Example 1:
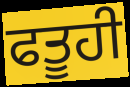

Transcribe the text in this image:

ਫਤੂਹੀ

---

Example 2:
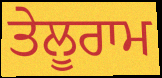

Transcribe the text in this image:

ਤੇਲੂਰਾਮ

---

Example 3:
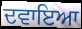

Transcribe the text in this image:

ਦਵਾਇਆ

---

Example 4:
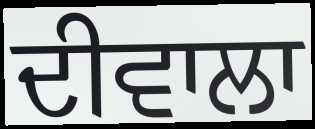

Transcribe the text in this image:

ਦੀਵਾਲਾ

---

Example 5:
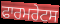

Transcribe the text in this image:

ਫਾਰਮਰੇਟਸ